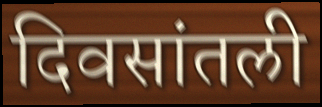
दिवसांतली